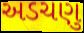
અડચણુ